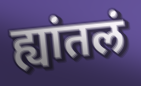
ह्यांतलं